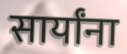
सार्यांना